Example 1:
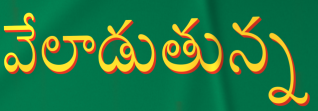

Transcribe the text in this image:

వేలాడుతున్న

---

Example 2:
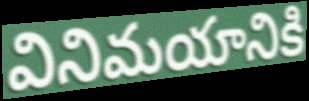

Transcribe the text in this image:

వినిమయానికి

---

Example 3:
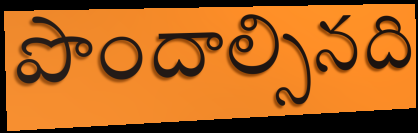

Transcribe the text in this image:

పొందాల్సినది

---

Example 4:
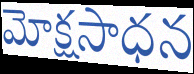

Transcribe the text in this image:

మోక్షసాధన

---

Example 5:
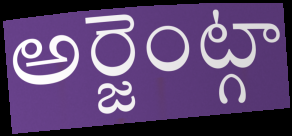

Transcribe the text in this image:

అర్జెంట్గా